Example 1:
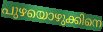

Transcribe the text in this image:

പുഴയൊഴുക്കിനെ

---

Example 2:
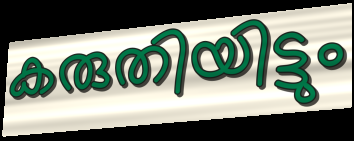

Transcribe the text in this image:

കരുതിയിട്ടും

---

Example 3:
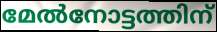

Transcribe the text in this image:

മേൽനോട്ടത്തിന്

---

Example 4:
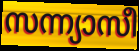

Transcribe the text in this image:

സന്ന്യാസീ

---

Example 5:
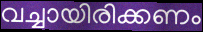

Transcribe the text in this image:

വച്ചായിരിക്കണം